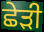
ਛੇੜੀ